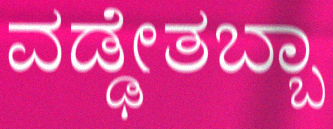
ವಡ್ಢೇತಬ್ಬಾ